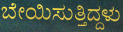
ಬೇಯಿಸುತ್ತಿದ್ದಳು